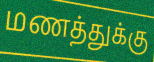
மணத்துக்கு